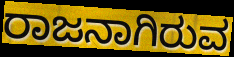
ರಾಜನಾಗಿರುವ